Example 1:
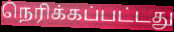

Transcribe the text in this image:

நெரிக்கப்பட்டது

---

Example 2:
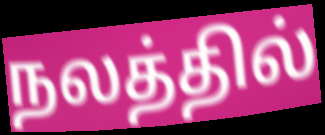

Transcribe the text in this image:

நலத்தில்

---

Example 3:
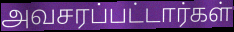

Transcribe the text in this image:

அவசரப்பட்டார்கள்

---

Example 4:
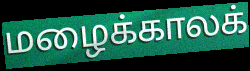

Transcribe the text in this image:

மழைக்காலக்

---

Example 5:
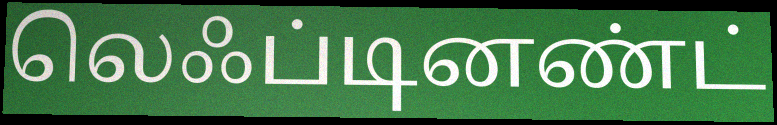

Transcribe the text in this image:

லெஃப்டினண்ட்